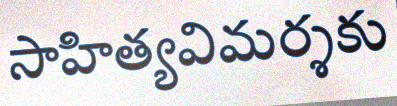
సాహిత్యవిమర్శకు